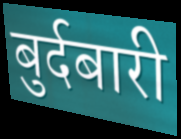
बुर्दबारी